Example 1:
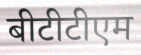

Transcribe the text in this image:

बीटीटीएम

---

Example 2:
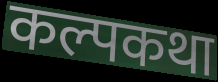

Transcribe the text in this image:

कल्पकथा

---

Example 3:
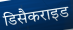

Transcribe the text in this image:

डिसैकराइड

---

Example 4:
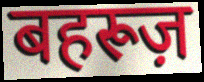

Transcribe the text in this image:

बहरूज़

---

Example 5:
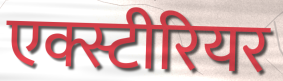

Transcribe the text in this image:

एक्स्टीरियर